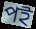
পই